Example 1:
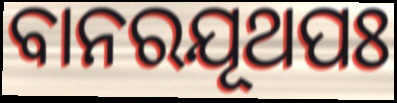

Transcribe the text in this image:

ବାନରଯୂଥପଃ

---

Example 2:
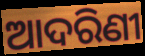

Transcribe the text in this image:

ଆଦରିଣୀ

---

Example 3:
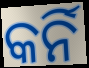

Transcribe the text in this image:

କର୍ନି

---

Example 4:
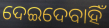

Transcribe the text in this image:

ଦେଇଦେବାହିଁ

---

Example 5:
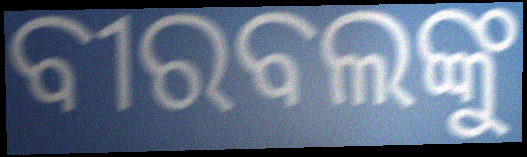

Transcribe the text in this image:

ବୀରବଲଙ୍କୁ